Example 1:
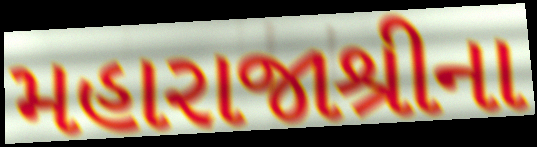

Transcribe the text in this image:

મહારાજાશ્રીના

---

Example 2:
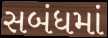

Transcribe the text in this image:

સબંધમાં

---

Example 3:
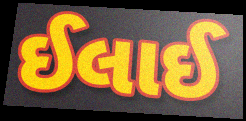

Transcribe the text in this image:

ઈલાઈ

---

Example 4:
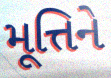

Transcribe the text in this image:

મૂત્તિને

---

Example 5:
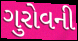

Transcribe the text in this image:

ગુરોવની